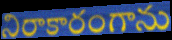
నిరాకారంగాను